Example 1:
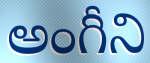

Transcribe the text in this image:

అంగీని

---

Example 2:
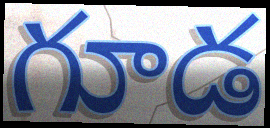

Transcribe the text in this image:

గూడ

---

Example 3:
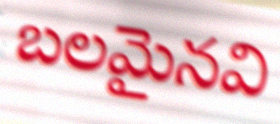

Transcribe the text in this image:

బలమైనవి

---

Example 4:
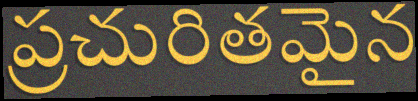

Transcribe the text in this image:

ప్రచురితమైన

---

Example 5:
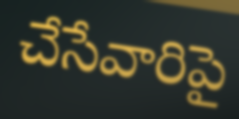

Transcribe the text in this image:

చేసేవారిపై